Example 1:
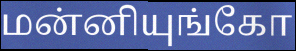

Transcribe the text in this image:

மன்னியுங்கோ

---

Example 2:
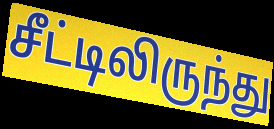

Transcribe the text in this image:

சீட்டிலிருந்து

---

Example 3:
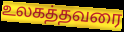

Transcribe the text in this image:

உலகத்தவரை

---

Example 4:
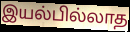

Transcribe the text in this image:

இயல்பில்லாத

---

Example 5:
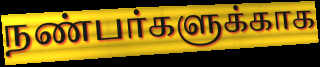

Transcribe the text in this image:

நண்பர்களுக்காக